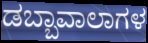
ಡಬ್ಬಾವಾಲಾಗಳ